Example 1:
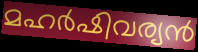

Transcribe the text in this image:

മഹർഷിവര്യൻ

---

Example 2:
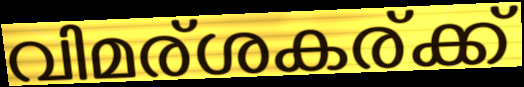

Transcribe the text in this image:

വിമര്ശകര്ക്ക്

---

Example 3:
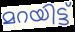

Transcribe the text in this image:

മറയിട്ട്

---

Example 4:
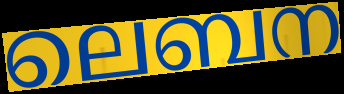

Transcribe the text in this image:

ലെബന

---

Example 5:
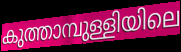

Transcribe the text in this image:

കുത്താമ്പുള്ളിയിലെ